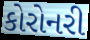
કોરોનરી